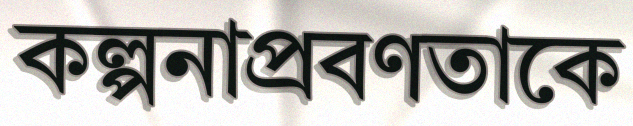
কল্পনাপ্রবণতাকে